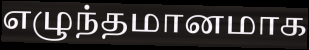
எழுந்தமானமாக